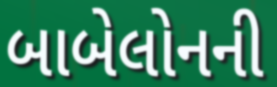
બાબેલોનની